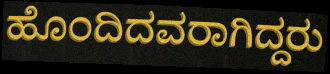
ಹೊಂದಿದವರಾಗಿದ್ದರು